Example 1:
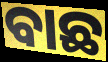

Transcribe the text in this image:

ବାଛ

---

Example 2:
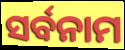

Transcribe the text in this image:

ସର୍ବନାମ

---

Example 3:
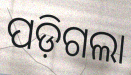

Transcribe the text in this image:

ପଡ଼ିଗଲା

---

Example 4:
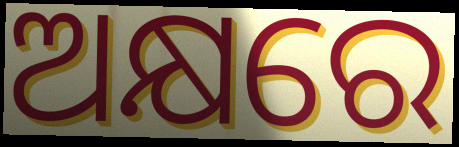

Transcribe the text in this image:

ଅକ୍ଷରେ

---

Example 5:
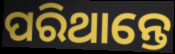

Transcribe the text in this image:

ପରିଥାନ୍ତେ